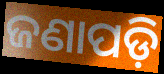
ଜଣାପଡ଼ି